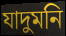
যাদুমনি